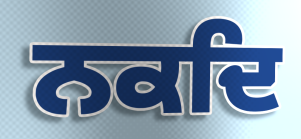
ਨਕਦਿ